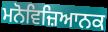
ਮਨੋਵਿਜ਼ਿਆਨਕ